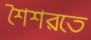
শৈশৱতে